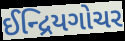
ઈન્દ્રિયગોચર